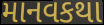
માનવકથા